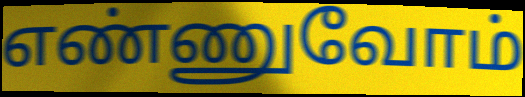
எண்ணுவோம்